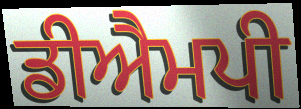
ਡੀਐਮਪੀ